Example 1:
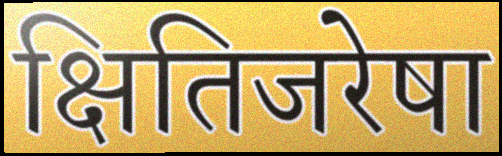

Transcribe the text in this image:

क्षितिजरेषा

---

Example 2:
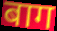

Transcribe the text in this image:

बाग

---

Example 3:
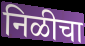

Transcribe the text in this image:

निळीचा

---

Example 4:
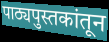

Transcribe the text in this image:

पाठ्यपुस्तकांतून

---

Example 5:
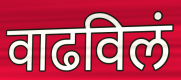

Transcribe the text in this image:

वाढविलं